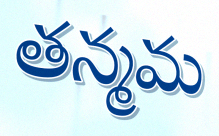
తన్మమ